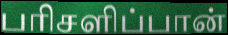
பரிசளிப்பான்